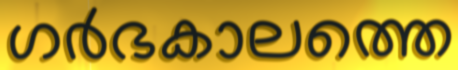
ഗർഭകാലത്തെ